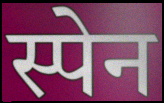
स्पेन